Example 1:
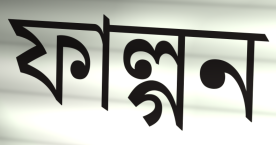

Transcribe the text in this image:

ফাল্গন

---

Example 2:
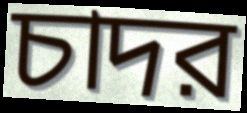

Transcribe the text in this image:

চাদর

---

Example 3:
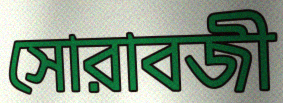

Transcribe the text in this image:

সোরাবজী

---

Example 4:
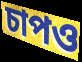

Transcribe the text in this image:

চাপও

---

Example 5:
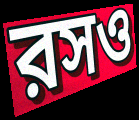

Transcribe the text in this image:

রসও